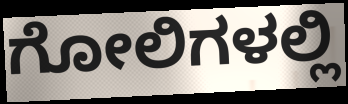
ಗೋಲಿಗಳಲ್ಲಿ